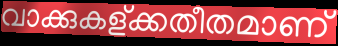
വാക്കുകള്ക്കതീതമാണ്